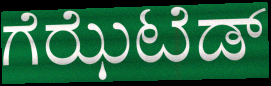
ಗೆಝೆಟೆಡ್